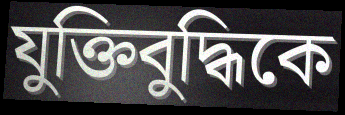
যুক্তিবুদ্ধিকে